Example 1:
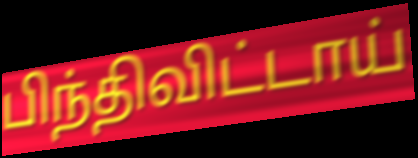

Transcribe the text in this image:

பிந்திவிட்டாய்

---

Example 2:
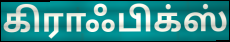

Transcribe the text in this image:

கிராஃபிக்ஸ்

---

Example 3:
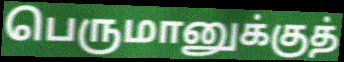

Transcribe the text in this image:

பெருமானுக்குத்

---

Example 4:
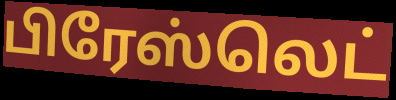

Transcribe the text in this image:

பிரேஸ்லெட்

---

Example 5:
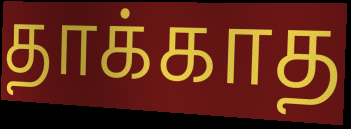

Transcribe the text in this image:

தாக்காத